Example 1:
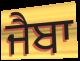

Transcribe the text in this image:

ਜੈਬਾ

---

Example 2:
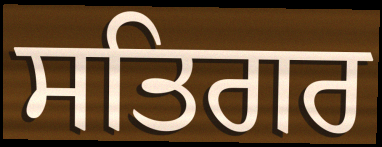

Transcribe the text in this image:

ਸਤਿਗਰ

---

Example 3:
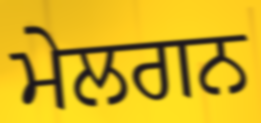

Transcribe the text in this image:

ਮੇਲਗਨ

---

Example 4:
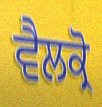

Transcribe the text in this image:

ਵੈਲਕ੍ਰੋ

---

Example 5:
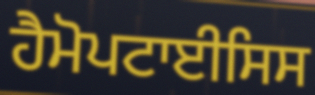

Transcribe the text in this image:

ਹੈਮੋਪਟਾਈਸਿਸ